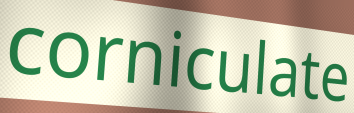
corniculate